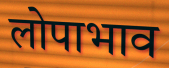
लोपाभाव